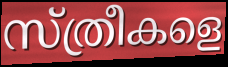
സ്ത്രീകളെ